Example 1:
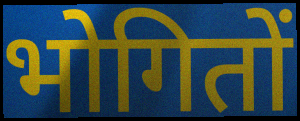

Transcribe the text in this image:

भोगितों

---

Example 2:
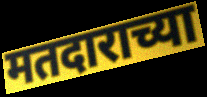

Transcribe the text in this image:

मतदाराच्या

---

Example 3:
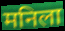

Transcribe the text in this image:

मनिला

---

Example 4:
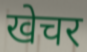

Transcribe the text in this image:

खेचर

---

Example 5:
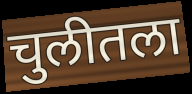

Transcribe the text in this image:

चुलीतला